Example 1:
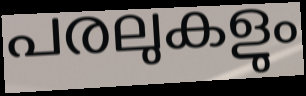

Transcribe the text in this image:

പരലുകളും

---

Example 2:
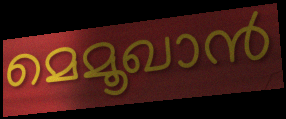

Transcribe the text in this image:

മെമൂഖാൻ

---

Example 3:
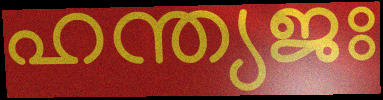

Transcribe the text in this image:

ഹന്ത്യജഃ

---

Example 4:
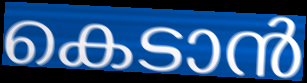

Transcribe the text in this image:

കെടാൻ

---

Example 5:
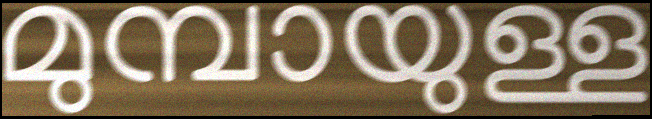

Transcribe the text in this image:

മുമ്പായുള്ള